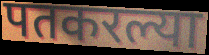
पतकरल्या